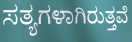
ಸತ್ಯಗಳಾಗಿರುತ್ತವೆ